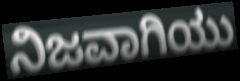
ನಿಜವಾಗಿಯು